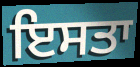
ਇਸਤਾ